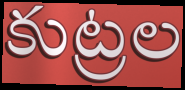
కుట్రల